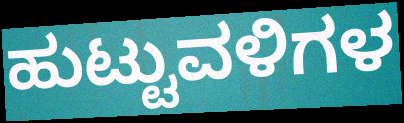
ಹುಟ್ಟುವಳಿಗಳ